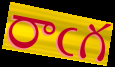
రాఁగ